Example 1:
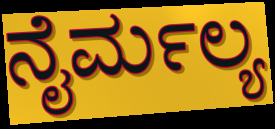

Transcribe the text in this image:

ನೈರ್ಮಲ್ಯ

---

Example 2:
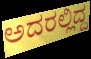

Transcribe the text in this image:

ಅದರಲ್ಲಿದ್ದ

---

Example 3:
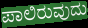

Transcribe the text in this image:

ಪಾಲಿರುವುದು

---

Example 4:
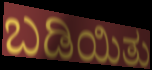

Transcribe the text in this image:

ಬಡಿಯಿತು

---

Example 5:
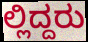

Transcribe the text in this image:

ಲ್ಲಿದ್ದರು